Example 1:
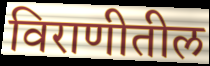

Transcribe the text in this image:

विराणीतील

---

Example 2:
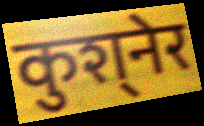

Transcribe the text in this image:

कुश्नेर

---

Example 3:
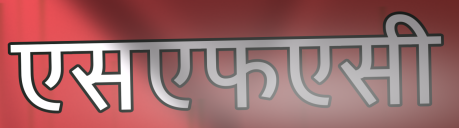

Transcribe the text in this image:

एसएफएसी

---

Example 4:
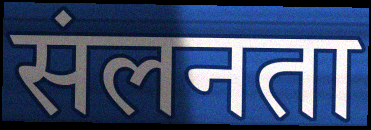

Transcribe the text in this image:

संलनता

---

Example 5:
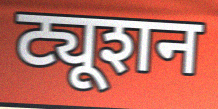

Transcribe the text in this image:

ट्यूशन